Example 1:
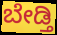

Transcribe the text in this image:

ಬೇಡ್ತಿ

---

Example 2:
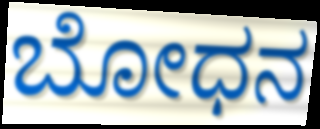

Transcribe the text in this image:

ಬೋಧನ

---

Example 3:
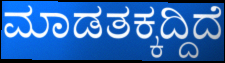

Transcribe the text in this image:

ಮಾಡತಕ್ಕದ್ದಿದೆ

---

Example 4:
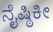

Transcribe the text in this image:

ನೈಷ್ಠಿಕೀ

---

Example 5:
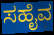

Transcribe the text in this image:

ಸಹೈವ